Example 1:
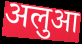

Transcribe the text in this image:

अलुआ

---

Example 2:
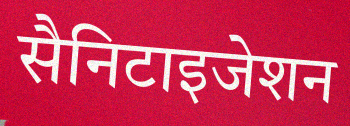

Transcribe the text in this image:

सैनिटाइजेशन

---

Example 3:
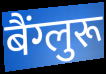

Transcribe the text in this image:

बैंग्लुरू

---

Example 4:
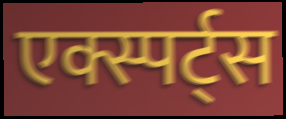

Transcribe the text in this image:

एक्स्पर्ट्स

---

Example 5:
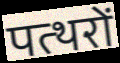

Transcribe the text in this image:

पत्‍थरों